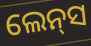
ଲେନ୍‍ସ